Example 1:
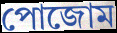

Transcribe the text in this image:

পোজোম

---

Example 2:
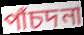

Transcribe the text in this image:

পাঁচদনা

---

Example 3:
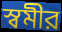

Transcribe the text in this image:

স্বমীর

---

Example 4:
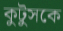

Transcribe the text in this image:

কুটুসকে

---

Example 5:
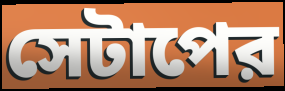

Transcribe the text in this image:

সেটাপের